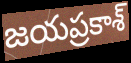
జయప్రకాశ్